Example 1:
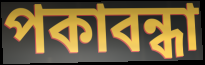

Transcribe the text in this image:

পকাবন্ধা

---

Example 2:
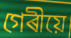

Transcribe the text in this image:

গেৰীয়ে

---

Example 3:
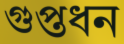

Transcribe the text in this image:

গুপ্তধন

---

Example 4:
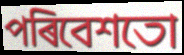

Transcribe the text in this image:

পৰিবেশতো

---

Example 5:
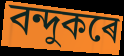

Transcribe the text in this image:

বন্দুকৰে